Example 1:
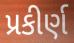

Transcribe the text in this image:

પ્રકીર્ણ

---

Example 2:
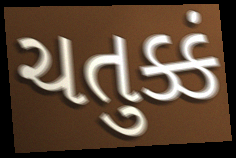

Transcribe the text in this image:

ચતુક્કં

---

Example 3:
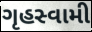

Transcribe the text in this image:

ગૃહસ્વામી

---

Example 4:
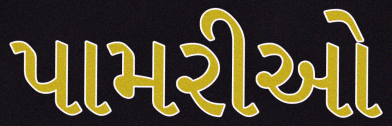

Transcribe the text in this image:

પામરીઓ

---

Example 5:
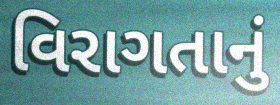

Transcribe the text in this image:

વિરાગતાનું